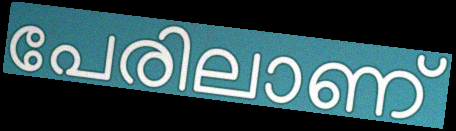
പേരിലാണ്